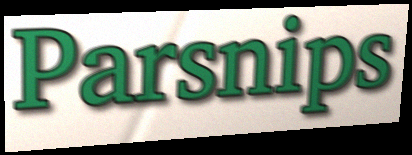
Parsnips